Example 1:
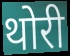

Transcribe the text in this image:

थोरी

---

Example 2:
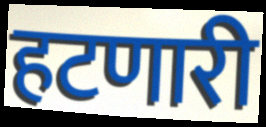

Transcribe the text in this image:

हटणारी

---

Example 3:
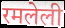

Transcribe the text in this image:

रमलेली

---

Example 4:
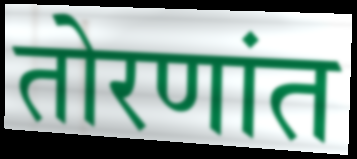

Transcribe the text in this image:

तोरणांत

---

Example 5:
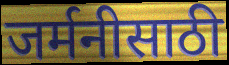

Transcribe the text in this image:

जर्मनीसाठी